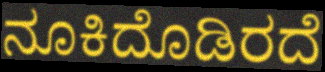
ನೂಕಿದೊಡಿರದೆ